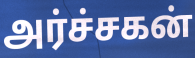
அர்ச்சகன்